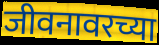
जीवनावरच्या